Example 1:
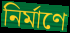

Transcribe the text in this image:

নিৰ্মাণে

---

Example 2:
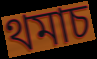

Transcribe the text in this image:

থমাচ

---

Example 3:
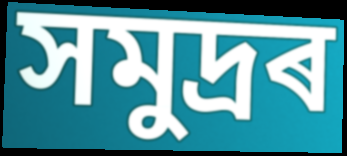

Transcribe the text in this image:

সমুদ্ৰৰ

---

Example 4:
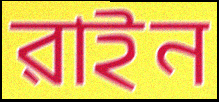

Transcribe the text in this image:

ৱাইন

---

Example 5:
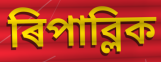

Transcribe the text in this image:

ৰিপাব্লিক